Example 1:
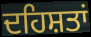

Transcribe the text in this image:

ਦਹਿਸ਼ਤਾਂ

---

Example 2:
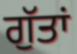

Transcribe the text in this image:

ਗੁੱਤਾਂ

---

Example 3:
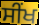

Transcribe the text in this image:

ਸੀਂਖ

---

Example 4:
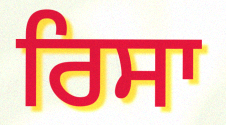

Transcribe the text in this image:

ਰਿਸਾ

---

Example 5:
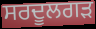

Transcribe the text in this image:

ਸਰਦੂਲਗੜ